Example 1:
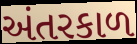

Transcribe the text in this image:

અંતરકાળ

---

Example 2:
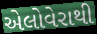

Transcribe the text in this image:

એલોવેરાથી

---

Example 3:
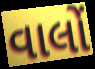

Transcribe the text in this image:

વાલોં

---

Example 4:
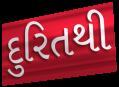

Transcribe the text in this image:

દુરિતથી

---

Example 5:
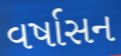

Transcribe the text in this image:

વર્ષાસન